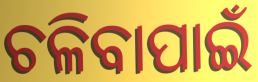
ଚଳିବାପାଇଁ